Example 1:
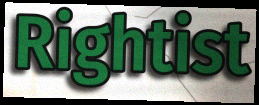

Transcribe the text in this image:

Rightist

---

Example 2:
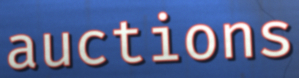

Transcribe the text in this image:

auctions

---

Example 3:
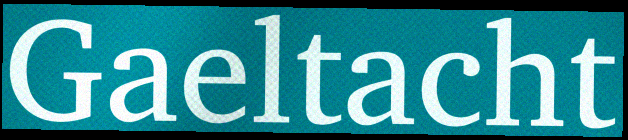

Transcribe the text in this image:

Gaeltacht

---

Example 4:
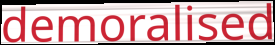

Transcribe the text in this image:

demoralised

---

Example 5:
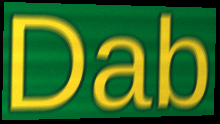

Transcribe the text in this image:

Dab